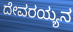
ದೇವರಯ್ಯನ